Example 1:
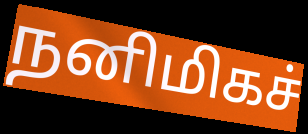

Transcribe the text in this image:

நனிமிகச்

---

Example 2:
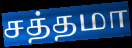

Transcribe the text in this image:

சத்தமா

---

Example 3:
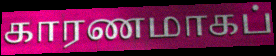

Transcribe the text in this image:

காரணமாகப்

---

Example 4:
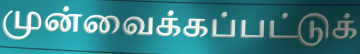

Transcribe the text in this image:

முன்வைக்கப்பட்டுக்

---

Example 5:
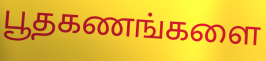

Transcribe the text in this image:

பூதகணங்களை